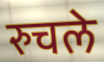
रुचले